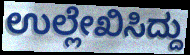
ಉಲ್ಲೇಖಿಸಿದ್ದು